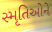
સ્મૃતિઓને